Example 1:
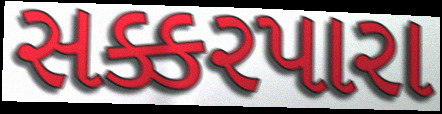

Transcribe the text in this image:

સક્કરપારા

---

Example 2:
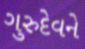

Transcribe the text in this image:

ગુરુદેવને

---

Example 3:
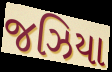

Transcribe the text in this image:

જઝિયા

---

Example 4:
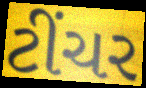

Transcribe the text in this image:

ટીંચર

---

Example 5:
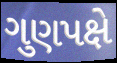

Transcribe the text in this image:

ગુણપક્ષે